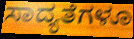
ಸಾದ್ಯತೆಗಳೂ